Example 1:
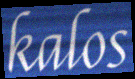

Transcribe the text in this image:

kalos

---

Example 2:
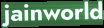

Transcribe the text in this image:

jainworld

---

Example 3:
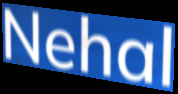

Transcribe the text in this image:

Nehal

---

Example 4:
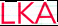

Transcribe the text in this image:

LKA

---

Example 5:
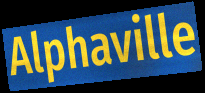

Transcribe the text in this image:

Alphaville